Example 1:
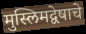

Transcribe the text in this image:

मुस्लिमद्वेषाचे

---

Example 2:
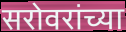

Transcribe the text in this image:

सरोवरांच्या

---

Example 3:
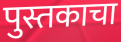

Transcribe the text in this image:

पुस्तकाचा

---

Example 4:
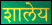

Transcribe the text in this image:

शालेय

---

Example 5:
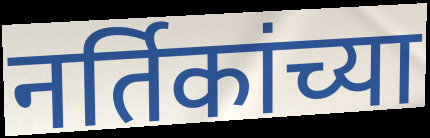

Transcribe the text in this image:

नर्तिकांच्या